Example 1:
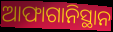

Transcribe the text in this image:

ଆଫାଗାନିସ୍ଥାନ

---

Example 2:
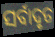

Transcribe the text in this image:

ସର୍ବାଦୃତ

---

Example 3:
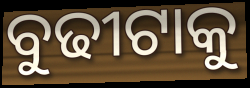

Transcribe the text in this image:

ବୁଢୀଟାକୁ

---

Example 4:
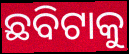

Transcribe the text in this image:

ଛବିଟାକୁ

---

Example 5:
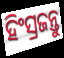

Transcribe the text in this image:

ହିଂସ୍ରଜନ୍ତୁ